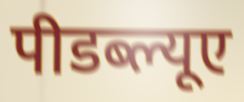
पीडब्ल्यूए